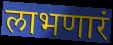
लाभणारं